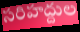
సరిహద్దుల